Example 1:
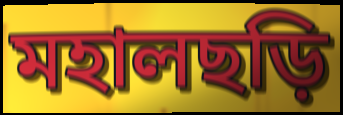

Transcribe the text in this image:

মহালছড়ি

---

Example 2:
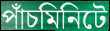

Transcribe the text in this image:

পাঁচমিনিটে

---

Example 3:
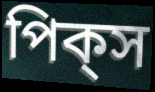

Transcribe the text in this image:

পিক্‌স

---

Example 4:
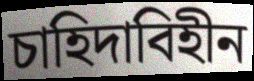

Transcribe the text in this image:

চাহিদাবিহীন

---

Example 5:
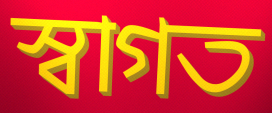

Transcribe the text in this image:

স্বাগত